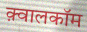
क़्वालकॉम